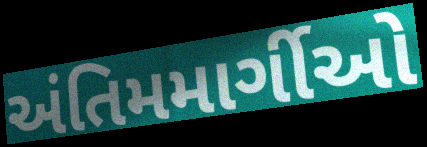
અંતિમમાર્ગીઓ